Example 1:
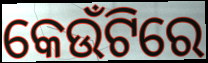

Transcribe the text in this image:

କେଉଁଟିରେ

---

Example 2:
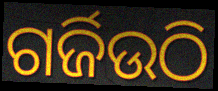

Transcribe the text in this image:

ଗର୍ଜିଉଠି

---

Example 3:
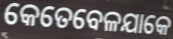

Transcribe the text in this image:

କେତେବେଳଯାକେ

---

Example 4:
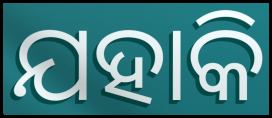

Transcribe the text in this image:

ଯହାକି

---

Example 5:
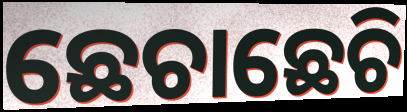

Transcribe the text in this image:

ଛେଚାଛେଚି